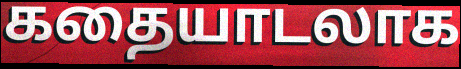
கதையாடலாக